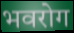
भवरोग